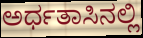
ಅರ್ಧತಾಸಿನಲ್ಲಿ